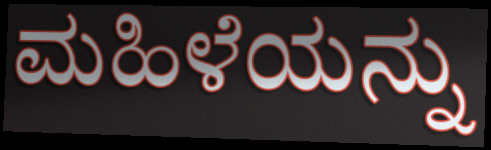
ಮಹಿಳೆಯನ್ನು